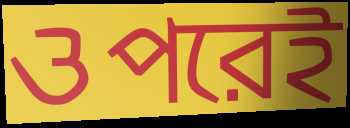
ওপরেই